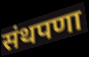
संथपणा